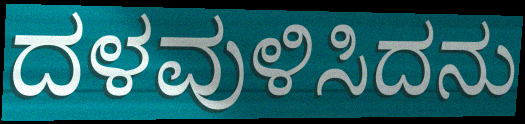
ದಳವುಳಿಸಿದನು